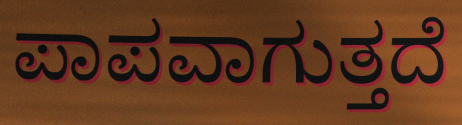
ಪಾಪವಾಗುತ್ತದೆ